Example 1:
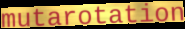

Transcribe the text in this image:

mutarotation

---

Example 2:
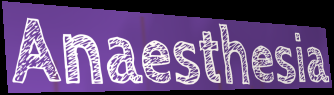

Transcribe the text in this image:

Anaesthesia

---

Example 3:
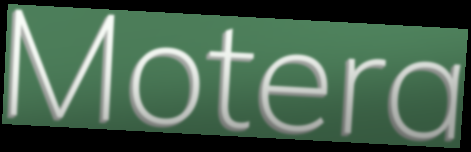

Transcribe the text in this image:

Motera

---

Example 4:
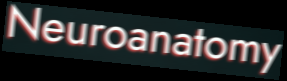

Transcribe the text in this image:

Neuroanatomy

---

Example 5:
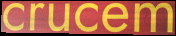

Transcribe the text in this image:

crucem